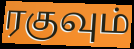
ரகுவும்